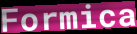
Formica